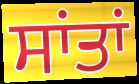
ਸਾਂਤਾਂ